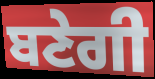
ਬਣੇਗੀ